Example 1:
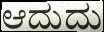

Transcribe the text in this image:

ಆದುದು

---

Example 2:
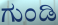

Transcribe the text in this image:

ಗುಂಡಿ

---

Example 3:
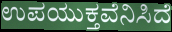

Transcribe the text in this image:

ಉಪಯುಕ್ತವೆನಿಸಿದೆ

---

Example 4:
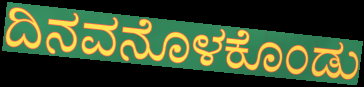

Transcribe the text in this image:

ದಿನವನೊಳಕೊಂಡು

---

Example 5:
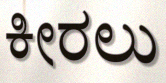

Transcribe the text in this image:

ಕೀರಲು